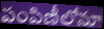
పంపిణీలోనూ